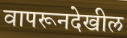
वापरूनदेखील